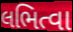
લભિત્વા